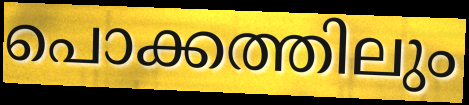
പൊക്കത്തിലും